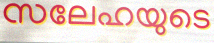
സലേഹയുടെ